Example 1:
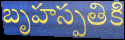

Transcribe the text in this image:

బృహస్పతికి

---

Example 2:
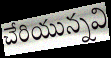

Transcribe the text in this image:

చేరియున్నవి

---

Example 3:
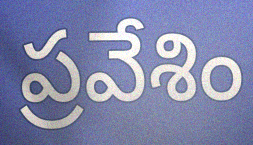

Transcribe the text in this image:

ప్రవేశిం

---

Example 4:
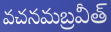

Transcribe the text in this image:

వచనమబ్రవీత్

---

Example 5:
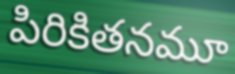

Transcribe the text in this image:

పిరికితనమూ